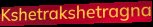
Kshetrakshetragna